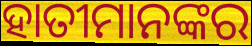
ହାତୀମାନଙ୍କର